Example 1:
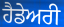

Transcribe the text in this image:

ਹੈਡੇਅਰੀ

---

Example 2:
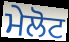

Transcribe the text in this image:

ਮੇਲੋਟ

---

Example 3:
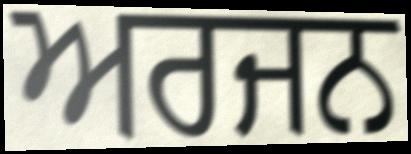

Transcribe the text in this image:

ਅਰਜਨ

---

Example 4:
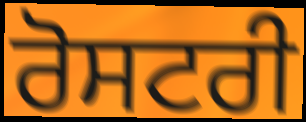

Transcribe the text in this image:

ਰੋਸਟਰੀ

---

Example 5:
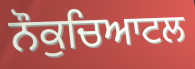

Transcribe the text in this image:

ਨੌਕੁਚਿਆਟਲ